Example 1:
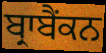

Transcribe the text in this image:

ਬ੍ਰਾਬੈਂਕਨ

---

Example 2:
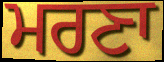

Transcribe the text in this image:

ਮਰਣਾ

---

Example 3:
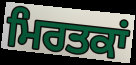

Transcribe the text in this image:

ਮਿਰਤਕਾਂ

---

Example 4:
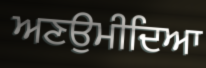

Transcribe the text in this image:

ਅਣਉਮੀਦਿਆ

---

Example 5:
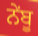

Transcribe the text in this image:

ਨੇਂਬੂ